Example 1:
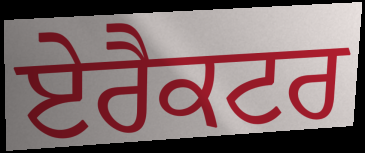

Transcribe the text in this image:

ਏਰੈਕਟਰ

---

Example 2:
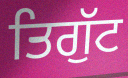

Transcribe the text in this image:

ਤਿਗੁੱਟ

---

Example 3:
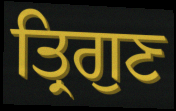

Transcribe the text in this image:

ਤ੍ਰਿਗੁਣ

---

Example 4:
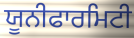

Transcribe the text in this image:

ਯੂਨੀਫਾਰਮਿਟੀ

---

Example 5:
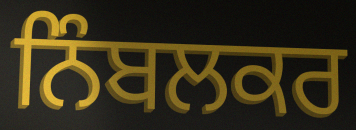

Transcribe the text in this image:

ਨਿੰਬਲਕਰ